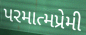
પરમાત્મપ્રેમી